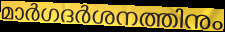
മാർഗദർശനത്തിനും